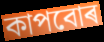
কাপবোৰ